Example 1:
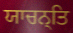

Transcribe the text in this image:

ਯਾਚਨ੍ਤਿ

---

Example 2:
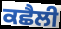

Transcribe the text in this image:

ਕਛੈਲੀ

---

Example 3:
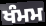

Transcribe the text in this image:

ਖੰਮਮ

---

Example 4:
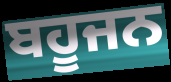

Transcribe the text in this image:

ਬਹੂਜਨ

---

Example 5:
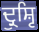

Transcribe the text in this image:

ਦ੍ਰੁਸ਼੍ਟਿ